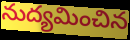
నుద్యమించిన